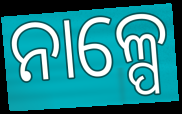
ନାଳ୍ପେ